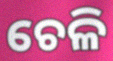
ଚେଳି